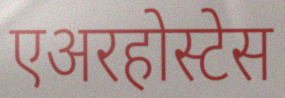
एअरहोस्टेस